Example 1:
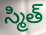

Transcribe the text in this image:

స్మిత్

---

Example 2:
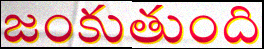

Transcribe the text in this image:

జంకుతుంది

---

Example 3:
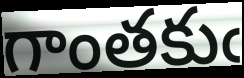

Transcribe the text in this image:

గాంతకుఁ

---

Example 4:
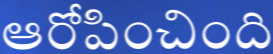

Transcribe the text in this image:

ఆరోపించింది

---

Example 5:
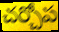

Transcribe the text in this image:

చర్చోప